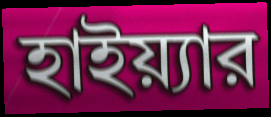
হাইয়্যার